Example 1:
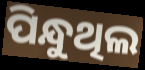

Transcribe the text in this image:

ପିନ୍ଧୁଥିଲ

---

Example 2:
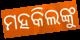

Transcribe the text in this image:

ମହକିଲଙ୍କୁ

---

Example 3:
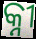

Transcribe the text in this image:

କ୍ନୀ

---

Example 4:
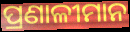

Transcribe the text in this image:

ପ୍ରଣାଳୀମାନ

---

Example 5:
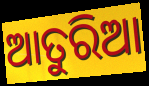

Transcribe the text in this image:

ଆତୁରିଆ